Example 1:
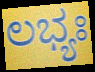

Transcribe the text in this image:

ಲಭ್ಯಃ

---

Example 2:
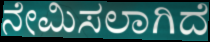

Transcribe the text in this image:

ನೇಮಿಸಲಾಗಿದೆ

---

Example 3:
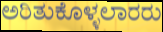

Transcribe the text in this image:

ಅರಿತುಕೊಳ್ಳಲಾರರು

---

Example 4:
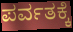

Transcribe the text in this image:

ಪರ್ವತಕ್ಕೆ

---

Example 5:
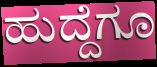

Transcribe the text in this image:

ಹುದ್ದೆಗೂ